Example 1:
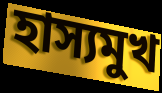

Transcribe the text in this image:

হাস্যমুখ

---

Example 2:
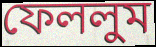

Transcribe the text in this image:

ফেললুম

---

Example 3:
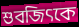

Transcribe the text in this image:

শুবজিৎকে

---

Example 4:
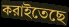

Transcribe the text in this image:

করাইতেছে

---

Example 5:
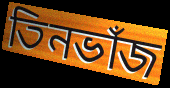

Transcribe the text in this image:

তিনভাঁজ